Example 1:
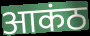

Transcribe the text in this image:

आकंठ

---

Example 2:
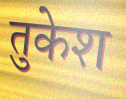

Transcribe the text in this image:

तुकेश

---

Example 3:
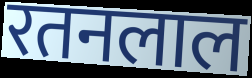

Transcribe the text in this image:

रतनलाल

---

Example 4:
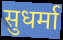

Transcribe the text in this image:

सुधर्मा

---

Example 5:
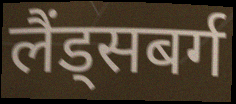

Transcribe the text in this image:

लैंड्सबर्ग